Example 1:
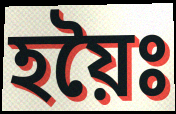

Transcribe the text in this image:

হয়ৈঃ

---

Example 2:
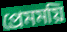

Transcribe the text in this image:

প্রেমময়ি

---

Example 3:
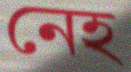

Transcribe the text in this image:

নেহ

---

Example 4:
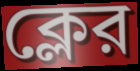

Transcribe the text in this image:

ক্লের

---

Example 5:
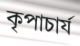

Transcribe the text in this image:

কৃপাচার্য